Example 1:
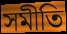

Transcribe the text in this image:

সমীতি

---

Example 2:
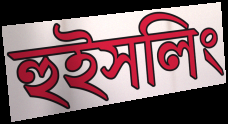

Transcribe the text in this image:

হুইসলিং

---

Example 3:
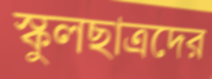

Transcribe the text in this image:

স্কুলছাত্রদের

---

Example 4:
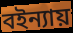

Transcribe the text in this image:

বইন্যায়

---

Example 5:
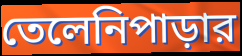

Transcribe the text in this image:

তেলেনিপাড়ার